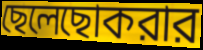
ছেলেছোকরার